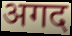
अगद